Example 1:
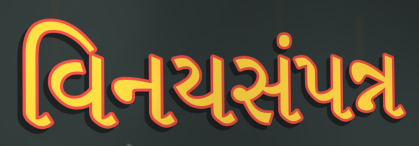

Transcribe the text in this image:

વિનયસંપન્ન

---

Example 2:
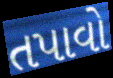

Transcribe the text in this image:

તપાવો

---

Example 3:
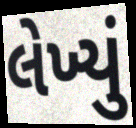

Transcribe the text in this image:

લેખ્યું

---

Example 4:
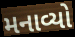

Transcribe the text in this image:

મનાવ્યો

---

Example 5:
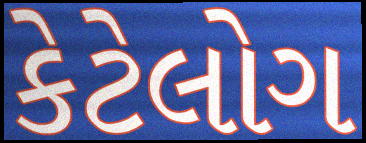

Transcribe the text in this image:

કેટેલોગ